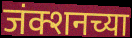
जंक्शनच्या